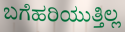
ಬಗೆಹರಿಯುತ್ತಿಲ್ಲ